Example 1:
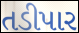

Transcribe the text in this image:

તડીપાર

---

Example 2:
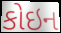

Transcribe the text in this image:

કોઇન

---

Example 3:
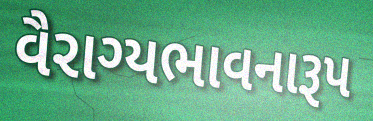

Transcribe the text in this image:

વૈરાગ્યભાવનારૂપ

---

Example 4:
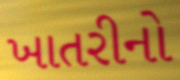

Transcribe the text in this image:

ખાતરીનો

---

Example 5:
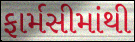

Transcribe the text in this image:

ફાર્મસીમાંથી